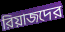
রিয়াজদের